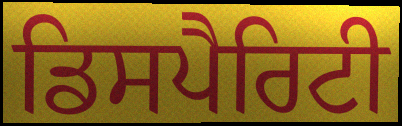
ਡਿਸਪੈਰਿਟੀ